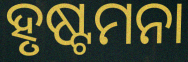
ହୃଷ୍ଟମନା